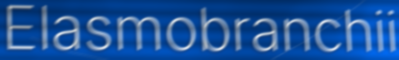
Elasmobranchii